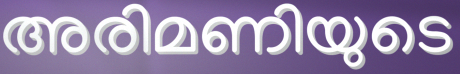
അരിമണിയുടെ